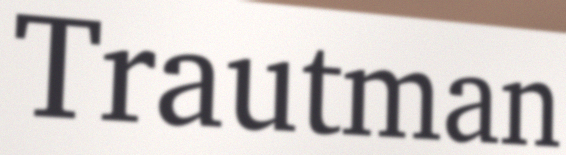
Trautman